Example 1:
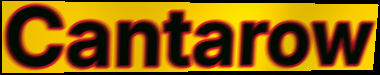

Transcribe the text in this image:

Cantarow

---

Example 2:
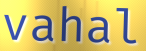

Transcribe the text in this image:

vahal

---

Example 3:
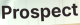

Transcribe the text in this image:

Prospect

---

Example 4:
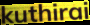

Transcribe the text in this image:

kuthirai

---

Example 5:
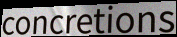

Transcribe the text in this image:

concretions